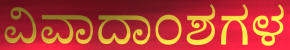
ವಿವಾದಾಂಶಗಳ